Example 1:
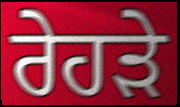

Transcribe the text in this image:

ਰੇਹੜੇ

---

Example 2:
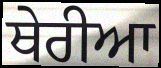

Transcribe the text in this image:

ਥੇਰੀਆ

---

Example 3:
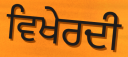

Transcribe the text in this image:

ਵਿਖੇਰਦੀ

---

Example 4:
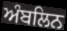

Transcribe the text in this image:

ਅੰਬਲਿਨ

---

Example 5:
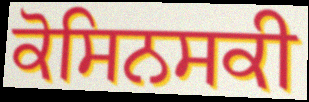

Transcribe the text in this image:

ਕੋਸਿਨਸਕੀ